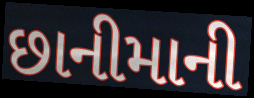
છાનીમાની